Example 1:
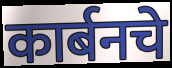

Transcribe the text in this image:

कार्बनचे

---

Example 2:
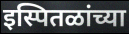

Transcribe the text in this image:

इस्पितळांच्या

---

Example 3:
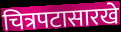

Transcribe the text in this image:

चित्रपटासारखे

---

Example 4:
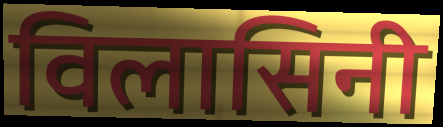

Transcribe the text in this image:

विलासिनी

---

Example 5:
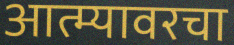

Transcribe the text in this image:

आत्म्यावरचा